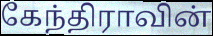
கேந்திராவின்